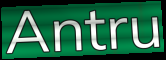
Antru